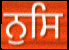
ਨੁਸਿ